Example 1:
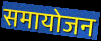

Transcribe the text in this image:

समायोजन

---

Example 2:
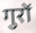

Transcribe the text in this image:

गुरों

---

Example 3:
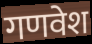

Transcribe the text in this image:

गणवेश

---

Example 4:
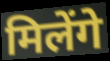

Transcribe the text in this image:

मिलेंगे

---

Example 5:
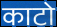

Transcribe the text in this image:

काटो